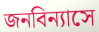
জনবিন্যাসে